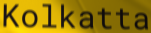
Kolkatta